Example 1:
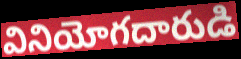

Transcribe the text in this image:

వినియోగదారుడి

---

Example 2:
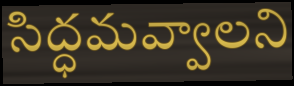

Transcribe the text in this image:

సిద్ధమవ్వాలని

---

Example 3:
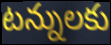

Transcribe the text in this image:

టన్నులకు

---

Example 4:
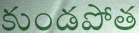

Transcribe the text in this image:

కుండపోత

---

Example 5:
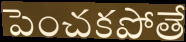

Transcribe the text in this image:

పెంచకపోతే